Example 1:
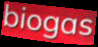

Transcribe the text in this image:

biogas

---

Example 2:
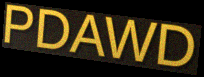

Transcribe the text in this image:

PDAWD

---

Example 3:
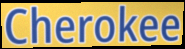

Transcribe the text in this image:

Cherokee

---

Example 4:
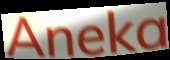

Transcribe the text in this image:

Aneka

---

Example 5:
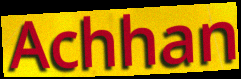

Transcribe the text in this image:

Achhan